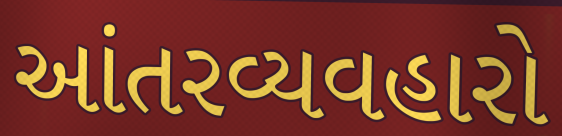
આંતરવ્યવહારો